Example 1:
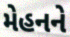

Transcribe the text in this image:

મેહનને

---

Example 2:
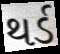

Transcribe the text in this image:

થર્ડ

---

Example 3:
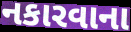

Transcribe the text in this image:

નકારવાના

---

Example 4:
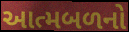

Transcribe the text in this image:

આત્મબળનો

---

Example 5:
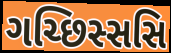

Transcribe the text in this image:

ગચ્છિસ્સસિ